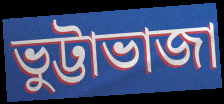
ভুট্টাভাজা